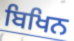
ਬਿਖਿਨ